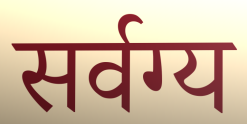
सर्वग्य